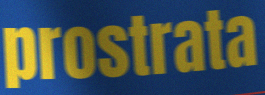
prostrata